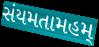
સંયમતામહમ્